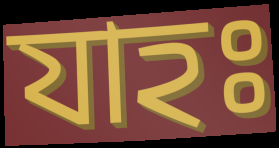
যাহঃ